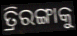
ତ୍ରିରଙ୍ଗାକୁ